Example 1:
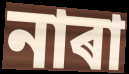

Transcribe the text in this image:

নাৰা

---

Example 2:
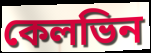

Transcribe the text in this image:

কেলভিন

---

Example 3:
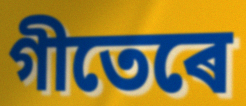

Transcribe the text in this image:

গীতেৰে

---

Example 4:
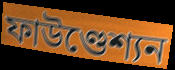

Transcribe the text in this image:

ফাউণ্ডেশ্যন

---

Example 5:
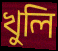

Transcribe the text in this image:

খুলি